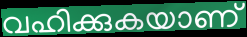
വഹിക്കുകയാണ്